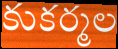
కుకర్మల